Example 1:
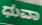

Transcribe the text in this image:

ಧುವಾ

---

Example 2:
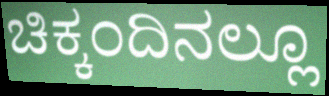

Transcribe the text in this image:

ಚಿಕ್ಕಂದಿನಲ್ಲೂ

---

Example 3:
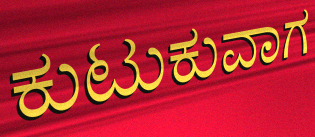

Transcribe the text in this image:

ಕುಟುಕುವಾಗ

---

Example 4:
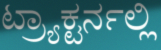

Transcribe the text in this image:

ಟ್ರ್ಯಾಕ್ಟರ್ನಲ್ಲಿ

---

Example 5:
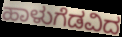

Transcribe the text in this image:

ಹಾಳುಗೆಡವಿದ